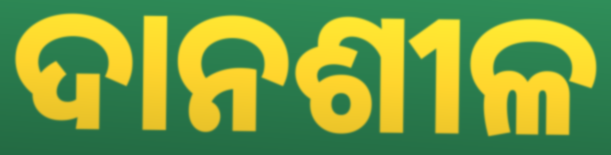
ଦାନଶୀଳ